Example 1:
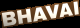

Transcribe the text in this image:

BHAVAI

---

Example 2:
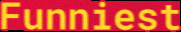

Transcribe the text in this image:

Funniest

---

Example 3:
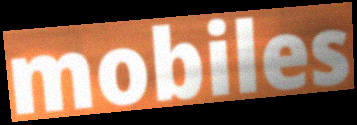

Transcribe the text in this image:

mobiles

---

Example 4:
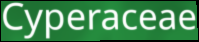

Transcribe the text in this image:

Cyperaceae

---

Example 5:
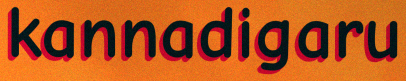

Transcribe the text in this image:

kannadigaru